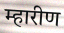
म्हारीण